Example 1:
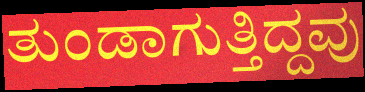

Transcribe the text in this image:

ತುಂಡಾಗುತ್ತಿದ್ದವು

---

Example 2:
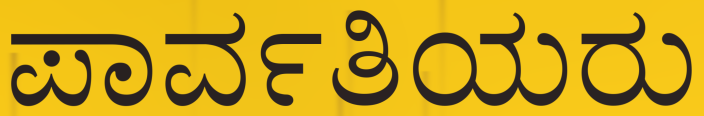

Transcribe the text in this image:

ಪಾರ್ವತಿಯರು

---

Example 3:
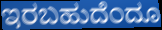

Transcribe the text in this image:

ಇರಬಹುದೆಂದೂ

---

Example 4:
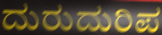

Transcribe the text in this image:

ದುರುದುರಿಪ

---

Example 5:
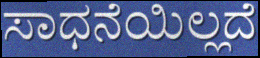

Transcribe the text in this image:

ಸಾಧನೆಯಿಲ್ಲದೆ